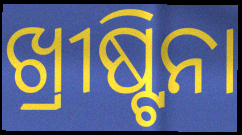
ଖ୍ରୀଷ୍ଟିନା